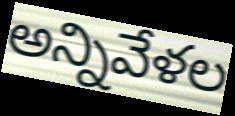
అన్నివేళల